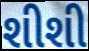
શીશી